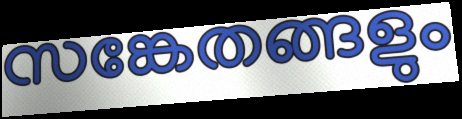
സങ്കേതങ്ങളും